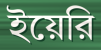
ইয়েরি